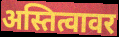
अस्तित्वावर